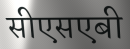
सीएसएबी